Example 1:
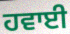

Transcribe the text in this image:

ਹਵਾਈ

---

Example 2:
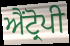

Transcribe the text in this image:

ਐਂਟ੍ਰੋਪੀ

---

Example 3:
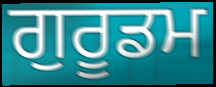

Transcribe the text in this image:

ਗੁਰੂਡਮ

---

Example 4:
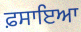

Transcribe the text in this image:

ਫ਼ਸਾਇਆ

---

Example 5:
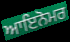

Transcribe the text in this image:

ਆਇਨੋਮਰ